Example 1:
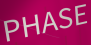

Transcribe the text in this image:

PHASE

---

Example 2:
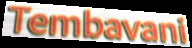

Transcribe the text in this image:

Tembavani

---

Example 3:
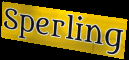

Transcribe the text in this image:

Sperling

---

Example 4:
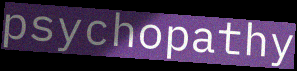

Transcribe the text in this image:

psychopathy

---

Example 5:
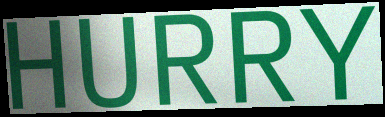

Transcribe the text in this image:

HURRY